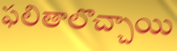
ఫలితాలొచ్చాయి